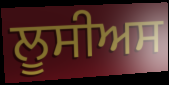
ਲੂਸੀਅਸ